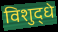
विशुद्धे